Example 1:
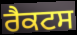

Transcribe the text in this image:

ਰੈਕਟਸ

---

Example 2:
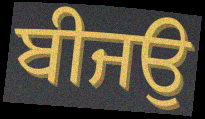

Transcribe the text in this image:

ਬੀਜਉ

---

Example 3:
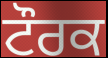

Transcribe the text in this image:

ਟੌਰਕ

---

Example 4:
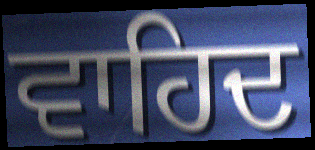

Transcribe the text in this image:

ਵਾਹਿਦ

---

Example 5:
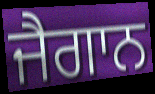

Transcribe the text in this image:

ਜੈਗਾਨ